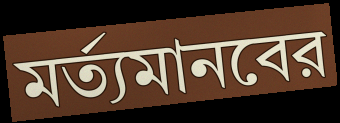
মর্ত্যমানবের